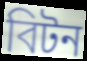
বিটন